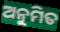
ଅନୁମିତ